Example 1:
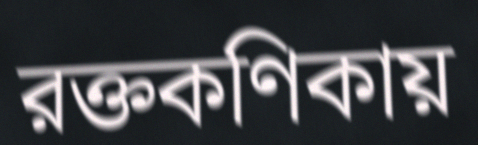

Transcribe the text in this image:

রক্তকণিকায়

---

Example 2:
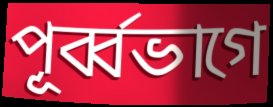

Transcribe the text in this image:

পূর্ব্বভাগে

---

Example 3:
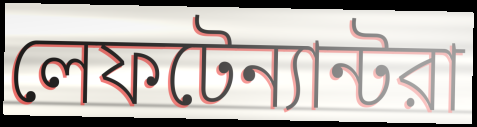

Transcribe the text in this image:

লেফটেন্যান্টরা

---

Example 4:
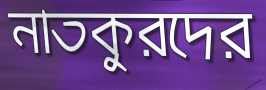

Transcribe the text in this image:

নাতকুরদের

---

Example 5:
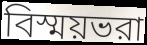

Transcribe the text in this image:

বিস্ময়ভরা